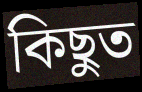
কিছুত